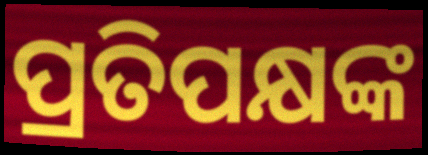
ପ୍ରତିପକ୍ଷଙ୍କ